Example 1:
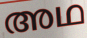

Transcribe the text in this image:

അഥ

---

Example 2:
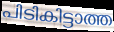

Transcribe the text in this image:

പിടികിട്ടാത്ത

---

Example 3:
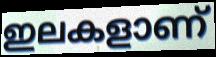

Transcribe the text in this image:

ഇലകളാണ്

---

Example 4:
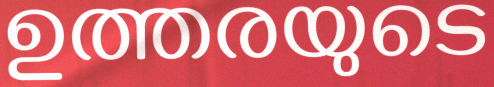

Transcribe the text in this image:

ഉത്തരയുടെ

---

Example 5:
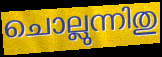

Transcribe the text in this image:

ചൊല്ലുന്നിതു